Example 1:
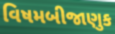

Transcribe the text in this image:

વિષમબીજાણુક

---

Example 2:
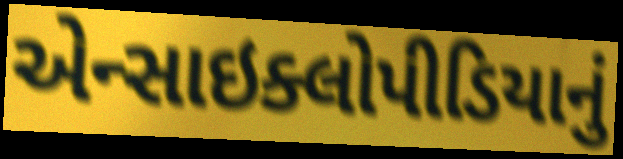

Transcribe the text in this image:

એન્સાઇક્લોપીડિયાનું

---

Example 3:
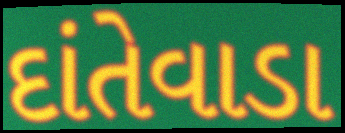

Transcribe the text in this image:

દાંતેવાડા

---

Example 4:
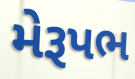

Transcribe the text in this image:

મેરૂપભ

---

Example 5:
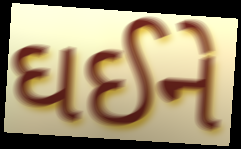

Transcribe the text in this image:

ઘઈને